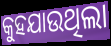
କୁହଯାଉଥିଲା